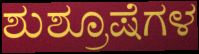
ಶುಶ್ರೂಷೆಗಳ